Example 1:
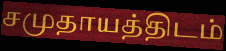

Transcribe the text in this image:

சமுதாயத்திடம்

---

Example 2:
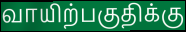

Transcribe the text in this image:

வாயிற்பகுதிக்கு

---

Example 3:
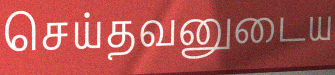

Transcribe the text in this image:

செய்தவனுடைய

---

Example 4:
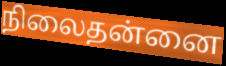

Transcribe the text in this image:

நிலைதன்னை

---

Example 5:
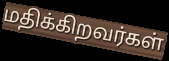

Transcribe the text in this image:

மதிக்கிறவர்கள்